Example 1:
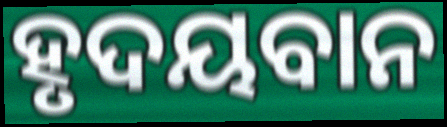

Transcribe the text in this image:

ହୃଦୟବାନ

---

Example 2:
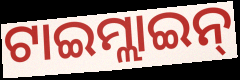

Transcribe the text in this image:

ଟାଇମ୍ଲାଇନ୍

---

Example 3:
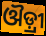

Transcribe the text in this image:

ଔଡ଼୍ରୀ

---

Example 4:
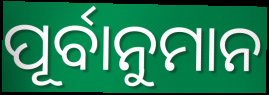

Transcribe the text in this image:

ପୂର୍ବାନୁମାନ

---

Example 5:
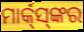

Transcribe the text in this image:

ମାର୍କ୍‌ସ୍‌ଙ୍କର